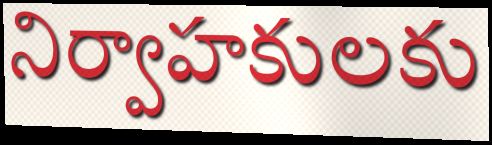
నిర్వాహకులకు